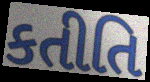
કતીતિ